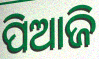
ପିଆଜି